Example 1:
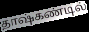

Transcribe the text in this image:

தாஷ்கண்டில்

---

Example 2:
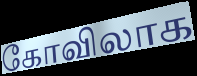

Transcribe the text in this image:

கோவிலாக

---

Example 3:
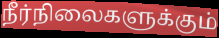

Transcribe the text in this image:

நீர்நிலைகளுக்கும்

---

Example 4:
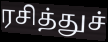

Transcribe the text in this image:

ரசித்துச்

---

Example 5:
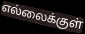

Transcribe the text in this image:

எல்லைக்குள்